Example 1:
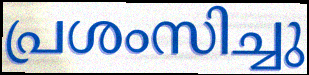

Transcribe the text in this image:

പ്രശംസിച്ചു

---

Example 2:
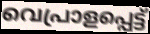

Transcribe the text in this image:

വെപ്രാളപ്പെട്ട്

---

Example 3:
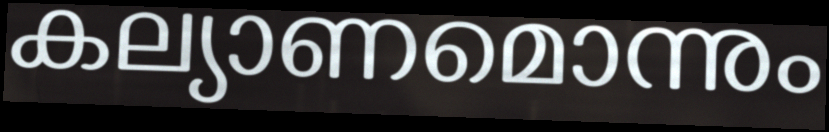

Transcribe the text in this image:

കല്യാണമൊന്നും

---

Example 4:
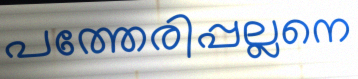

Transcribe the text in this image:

പത്തേരിപ്പല്ലനെ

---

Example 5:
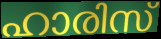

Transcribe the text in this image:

ഹാരിസ്